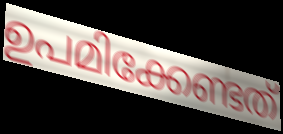
ഉപമിക്കേണ്ടത്